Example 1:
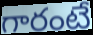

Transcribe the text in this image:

గారంటే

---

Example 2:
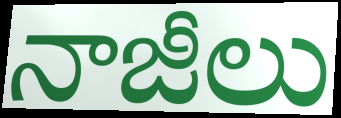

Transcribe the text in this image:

నాజీలు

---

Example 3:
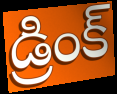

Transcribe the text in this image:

డ్రింక్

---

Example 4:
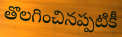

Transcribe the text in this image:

తొలగించినప్పటికీ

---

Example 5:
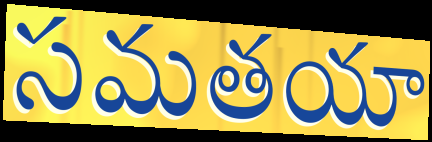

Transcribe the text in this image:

సమతయా